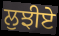
ਲੁਝੀਏ